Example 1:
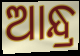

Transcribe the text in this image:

ଆନ୍ଧ୍ର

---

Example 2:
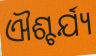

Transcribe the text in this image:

ଐଶ୍ଚର୍ଯ୍ୟ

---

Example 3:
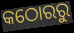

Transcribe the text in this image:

କଠୋରରୁ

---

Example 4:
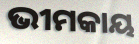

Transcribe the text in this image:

ଭୀମକାୟ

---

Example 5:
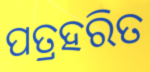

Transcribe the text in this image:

ପତ୍ରହରିତ